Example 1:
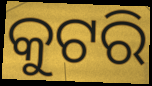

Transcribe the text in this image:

କୁଟରି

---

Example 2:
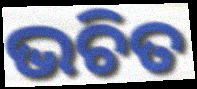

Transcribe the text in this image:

ଭଚିତ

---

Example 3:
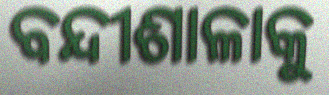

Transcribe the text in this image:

ବନ୍ଦୀଶାଳାକୁ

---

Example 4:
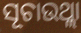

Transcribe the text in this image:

ସୂଚାଉଥ୍ଲା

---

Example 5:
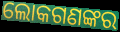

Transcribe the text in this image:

ଲୋକଗଣଙ୍କର